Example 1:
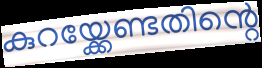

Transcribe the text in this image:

കുറയ്ക്കേണ്ടതിന്റെ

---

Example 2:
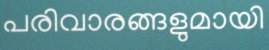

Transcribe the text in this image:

പരിവാരങ്ങളുമായി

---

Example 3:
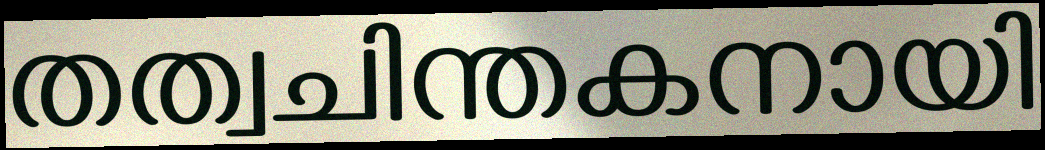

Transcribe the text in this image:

തത്വചിന്തകനായി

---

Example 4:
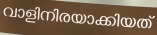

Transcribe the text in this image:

വാളിനിരയാക്കിയത്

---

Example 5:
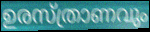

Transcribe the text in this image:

ഉരസ്ത്രാണവും